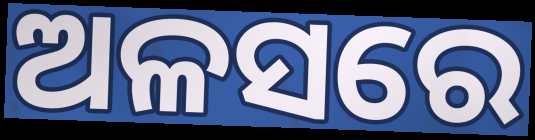
ଅଳସରେ